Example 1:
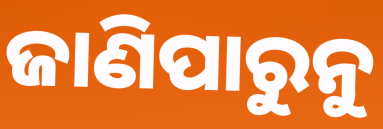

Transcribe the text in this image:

ଜାଣିପାରୁନୁ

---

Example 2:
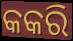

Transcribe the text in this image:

କକରି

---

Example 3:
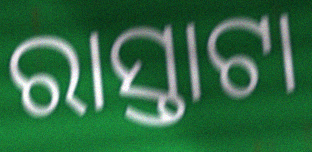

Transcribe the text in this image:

ରାସ୍ତାଟା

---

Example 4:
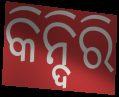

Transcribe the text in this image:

କିନ୍ଦିରି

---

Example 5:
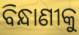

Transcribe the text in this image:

ବିନ୍ଧାଣୀକୁ